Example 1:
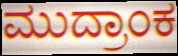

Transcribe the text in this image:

ಮುದ್ರಾಂಕ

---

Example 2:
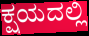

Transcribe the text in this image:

ಕ್ಷಯದಲ್ಲಿ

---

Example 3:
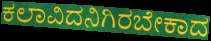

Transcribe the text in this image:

ಕಲಾವಿದನಿಗಿರಬೇಕಾದ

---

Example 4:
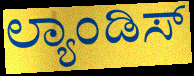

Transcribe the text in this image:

ಲ್ಯಾಂಡಿಸ್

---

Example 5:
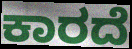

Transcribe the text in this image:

ಕಾರದೆ